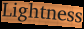
Lightness